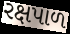
રક્ષપાળ